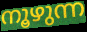
നൂഴുന്ന